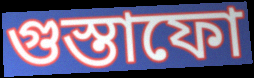
গুস্তাফো